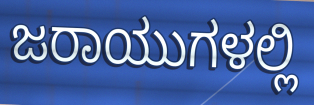
ಜರಾಯುಗಳಲ್ಲಿ